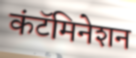
कंटॅमिनेशन